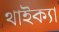
থাইক্যা